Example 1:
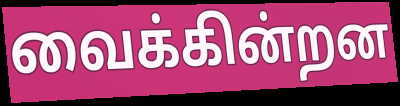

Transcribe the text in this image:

வைக்கின்றன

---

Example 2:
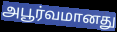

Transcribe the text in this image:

அபூர்வமானது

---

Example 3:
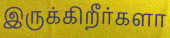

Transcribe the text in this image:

இருக்கிறீர்களா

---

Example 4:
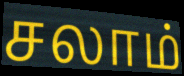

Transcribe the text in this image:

சலாம்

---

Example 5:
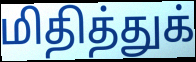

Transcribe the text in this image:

மிதித்துக்